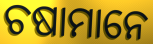
ଚଷାମାନେ